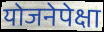
योजनेपेक्षा